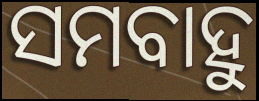
ସମବାହୁ